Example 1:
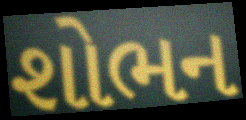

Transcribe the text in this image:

શોભન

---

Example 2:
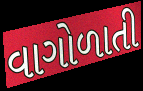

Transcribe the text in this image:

વાગોળાતી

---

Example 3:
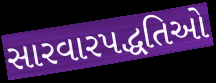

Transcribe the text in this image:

સારવારપદ્ધતિઓ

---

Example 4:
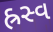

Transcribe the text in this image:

હ્રસ્વ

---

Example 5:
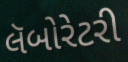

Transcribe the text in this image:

લૅબોરેટરી